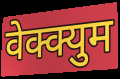
वेक्क्युम